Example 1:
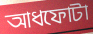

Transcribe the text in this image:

আধফোটা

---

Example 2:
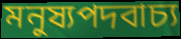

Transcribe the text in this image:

মনুষ্যপদবাচ্য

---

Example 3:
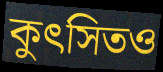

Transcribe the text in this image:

কুৎসিতও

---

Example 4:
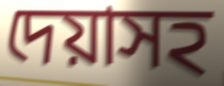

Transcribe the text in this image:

দেয়াসহ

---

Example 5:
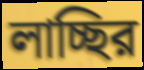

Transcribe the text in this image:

লাচ্ছির